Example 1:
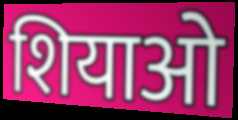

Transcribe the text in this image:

शियाओ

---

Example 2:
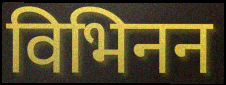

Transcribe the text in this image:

विभिनन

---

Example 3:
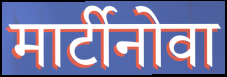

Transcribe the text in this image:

मार्टीनोवा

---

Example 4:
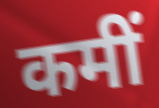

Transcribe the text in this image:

कमीं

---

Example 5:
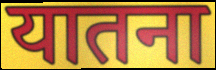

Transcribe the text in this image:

यातना